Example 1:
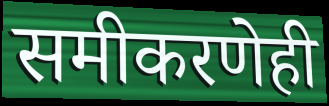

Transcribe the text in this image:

समीकरणेही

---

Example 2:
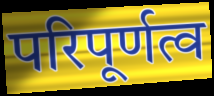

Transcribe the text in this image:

परिपूर्णत्व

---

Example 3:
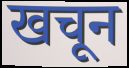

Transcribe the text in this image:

खचून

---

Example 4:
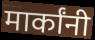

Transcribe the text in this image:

मार्कांनी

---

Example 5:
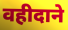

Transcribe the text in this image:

वहीदाने